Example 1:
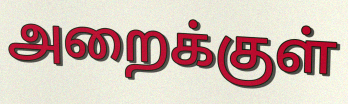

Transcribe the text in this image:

அறைக்குள்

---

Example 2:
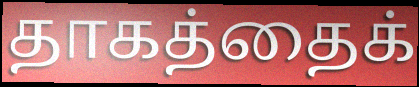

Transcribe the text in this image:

தாகத்தைக்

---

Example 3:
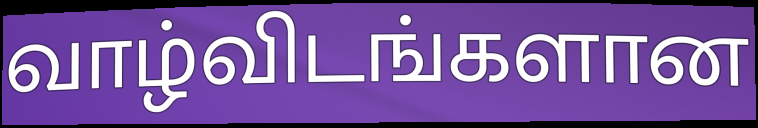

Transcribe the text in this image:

வாழ்விடங்களான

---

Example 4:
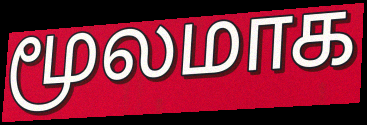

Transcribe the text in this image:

மூலமாக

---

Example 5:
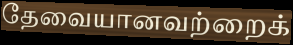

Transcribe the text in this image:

தேவையானவற்றைக்